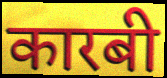
कारबी